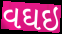
વઘઇ